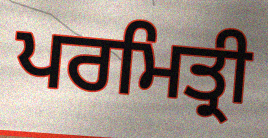
ਪਰਮਿਤ੍ਰੀ